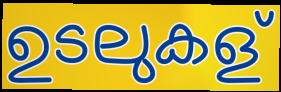
ഉടലുകള്